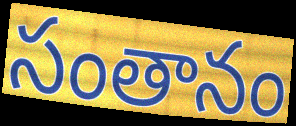
సంతానం